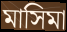
মাসিমা